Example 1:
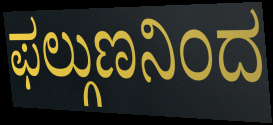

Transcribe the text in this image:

ಫಲ್ಗುಣನಿಂದ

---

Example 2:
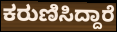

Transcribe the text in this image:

ಕರುಣಿಸಿದ್ದಾರೆ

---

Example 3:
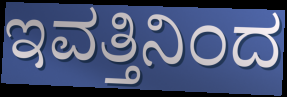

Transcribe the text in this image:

ಇವತ್ತಿನಿಂದ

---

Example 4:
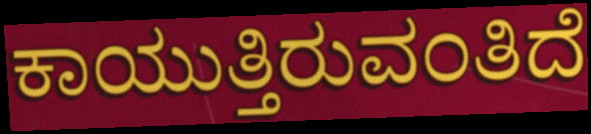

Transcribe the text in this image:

ಕಾಯುತ್ತಿರುವಂತಿದೆ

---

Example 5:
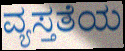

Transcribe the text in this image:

ವ್ಯಸ್ತತೆಯ